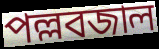
পল্লবজাল